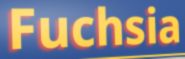
Fuchsia